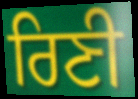
ਰਿਣੀ